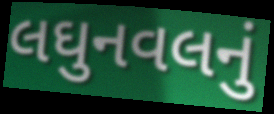
લઘુનવલનું